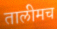
तालीमच